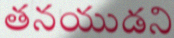
తనయుడని